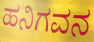
ಹನಿಗವನ